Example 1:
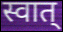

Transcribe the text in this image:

स्वात्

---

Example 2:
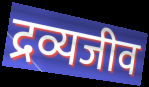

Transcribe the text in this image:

द्रव्यजीव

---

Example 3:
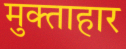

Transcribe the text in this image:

मुक्ताहार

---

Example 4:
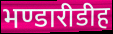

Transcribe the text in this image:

भण्डारीडीह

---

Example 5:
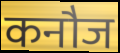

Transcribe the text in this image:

कनौज